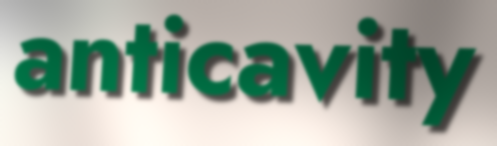
anticavity